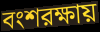
বংশরক্ষায়